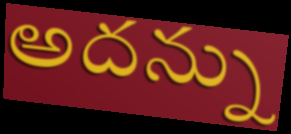
అదన్ను